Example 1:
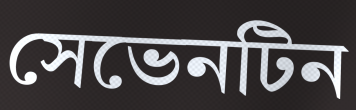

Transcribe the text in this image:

সেভেনটিন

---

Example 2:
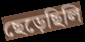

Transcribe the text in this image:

ছেড়েছিলি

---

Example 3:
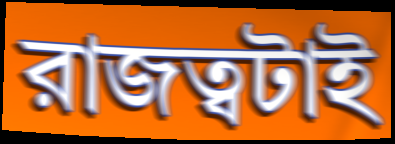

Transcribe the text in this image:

রাজত্বটাই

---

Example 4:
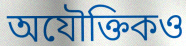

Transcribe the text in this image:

অযৌক্তিকও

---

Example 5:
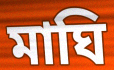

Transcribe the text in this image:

মাঘি